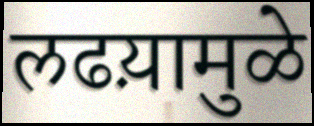
लढय़ामुळे